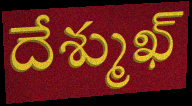
దేశ్ముఖ్